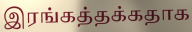
இரங்கத்தக்கதாக